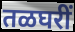
तळघरीं